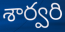
శార్వరి